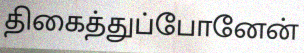
திகைத்துப்போனேன்